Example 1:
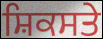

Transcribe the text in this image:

ਸ਼ਿਕਸਤੇ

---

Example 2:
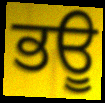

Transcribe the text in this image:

ਭਊ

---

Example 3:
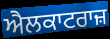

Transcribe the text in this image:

ਐਲਕਾਟਰਾਜ਼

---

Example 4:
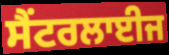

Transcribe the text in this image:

ਸੈਂਟਰਲਾਈਜ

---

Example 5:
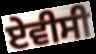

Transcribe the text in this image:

ਏਵੀਸੀ